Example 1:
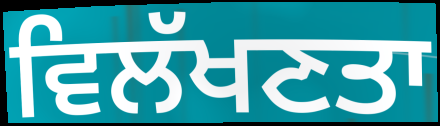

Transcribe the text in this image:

ਵਿਲੱਖਣਤਾ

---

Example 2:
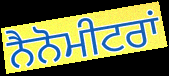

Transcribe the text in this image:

ਨੈਨੋਮੀਟਰਾਂ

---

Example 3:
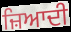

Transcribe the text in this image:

ਜ਼ਿਆਦੀ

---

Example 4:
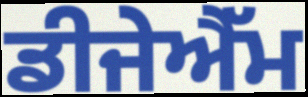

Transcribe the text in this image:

ਡੀਜੇਐੱਮ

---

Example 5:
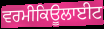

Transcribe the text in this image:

ਵਰਮੀਕਿਊਲਾਈਟ